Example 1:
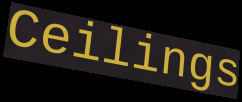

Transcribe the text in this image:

Ceilings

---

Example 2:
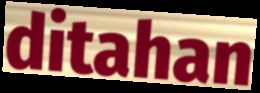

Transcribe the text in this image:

ditahan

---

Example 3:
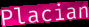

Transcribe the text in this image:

Placian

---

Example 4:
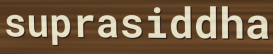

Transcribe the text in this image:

suprasiddha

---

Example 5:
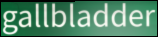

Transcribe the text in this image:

gallbladder